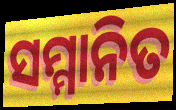
ସମ୍ମାନିତ